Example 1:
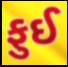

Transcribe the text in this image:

ફુઈ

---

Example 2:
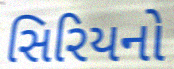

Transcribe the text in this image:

સિરિયનો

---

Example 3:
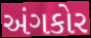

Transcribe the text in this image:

અંગકોર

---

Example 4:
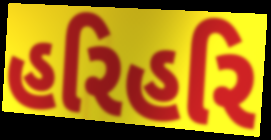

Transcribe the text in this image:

હરિહરિ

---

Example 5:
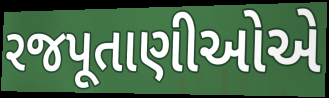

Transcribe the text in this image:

રજપૂતાણીઓએ